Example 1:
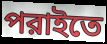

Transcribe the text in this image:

পরাইতে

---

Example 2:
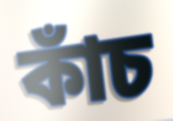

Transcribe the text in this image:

কাঁচ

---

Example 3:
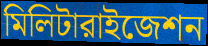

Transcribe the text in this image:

মিলিটারাইজেশন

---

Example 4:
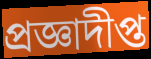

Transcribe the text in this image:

প্রজ্ঞাদীপ্ত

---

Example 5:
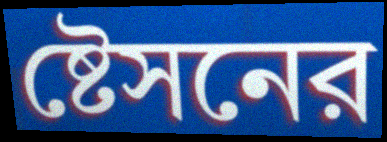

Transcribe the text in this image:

ষ্টেসনের